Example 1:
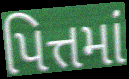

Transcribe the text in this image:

પિત્તમાં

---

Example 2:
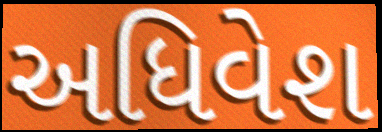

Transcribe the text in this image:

અધિવેશ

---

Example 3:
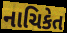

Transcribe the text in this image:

નાચિકેત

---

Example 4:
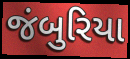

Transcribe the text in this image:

જંબુરિયા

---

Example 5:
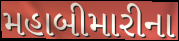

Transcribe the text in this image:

મહાબીમારીના